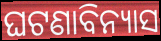
ଘଟଣାବିନ୍ୟାସ